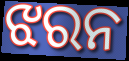
ଝରନ